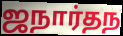
ஜநார்தந